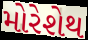
મોરેશેથ